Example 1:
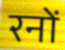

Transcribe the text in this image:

रनों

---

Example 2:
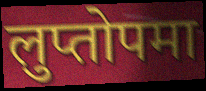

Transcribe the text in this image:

लुप्तोपमा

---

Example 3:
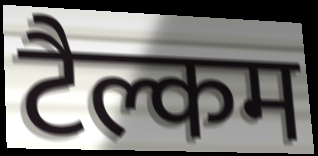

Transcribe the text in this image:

टैल्कम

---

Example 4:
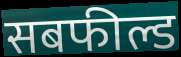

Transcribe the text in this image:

सबफील्ड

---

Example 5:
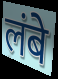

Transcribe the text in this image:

लंबे